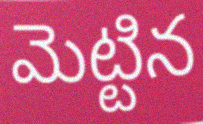
మెట్టిన